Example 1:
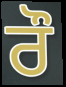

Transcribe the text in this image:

ਰੌ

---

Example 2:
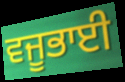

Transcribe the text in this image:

ਵਜੂਭਾਈ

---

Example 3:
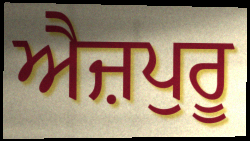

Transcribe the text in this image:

ਐਜ਼ਪੁਰੂ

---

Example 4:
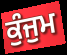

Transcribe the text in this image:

ਕੁੰਜੁਮ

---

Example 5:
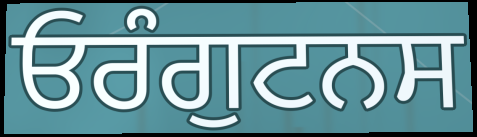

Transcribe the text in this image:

ਓਰੰਗੁਟਨਸ